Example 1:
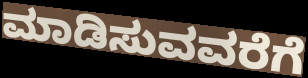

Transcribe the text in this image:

ಮಾಡಿಸುವವರೆಗೆ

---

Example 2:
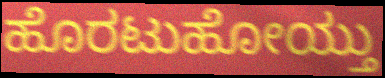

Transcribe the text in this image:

ಹೊರಟುಹೋಯ್ತು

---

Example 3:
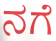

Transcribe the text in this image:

ನಗೆ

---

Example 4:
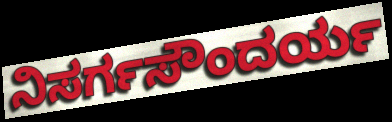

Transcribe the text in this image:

ನಿಸರ್ಗಸೌಂದರ್ಯ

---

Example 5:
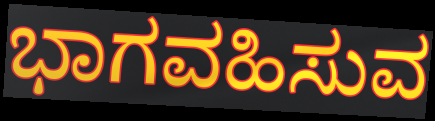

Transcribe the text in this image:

ಭಾಗವಹಿಸುವ